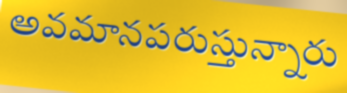
అవమానపరుస్తున్నారు